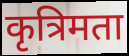
कृत्रिमता